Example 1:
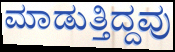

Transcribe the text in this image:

ಮಾಡುತ್ತಿದ್ದವು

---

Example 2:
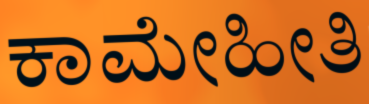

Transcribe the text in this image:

ಕಾಮೇಹೀತಿ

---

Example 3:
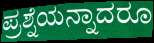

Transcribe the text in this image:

ಪ್ರಶ್ನೆಯನ್ನಾದರೂ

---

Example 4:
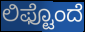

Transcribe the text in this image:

ಲಿಫ್ಟೊಂದೆ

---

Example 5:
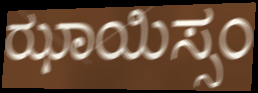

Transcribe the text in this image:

ಝಾಯಿಸ್ಸಂ